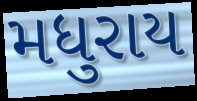
મધુરાય